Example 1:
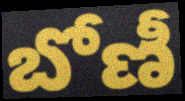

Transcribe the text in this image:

బోణీ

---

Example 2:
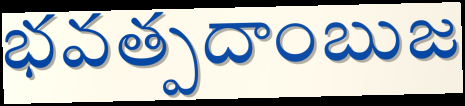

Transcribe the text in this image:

భవత్పదాంబుజ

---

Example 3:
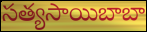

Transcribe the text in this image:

సత్యసాయిబాబా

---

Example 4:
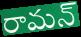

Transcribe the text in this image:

రామన్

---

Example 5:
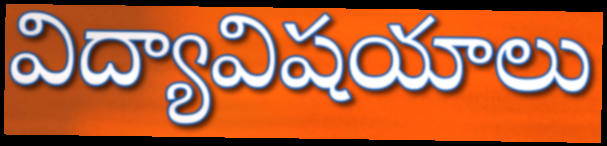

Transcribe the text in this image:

విద్యావిషయాలు